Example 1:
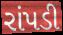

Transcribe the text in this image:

રાંપડી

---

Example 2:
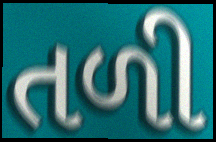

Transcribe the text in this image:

તળી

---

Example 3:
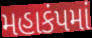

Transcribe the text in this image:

મહાકંપમાં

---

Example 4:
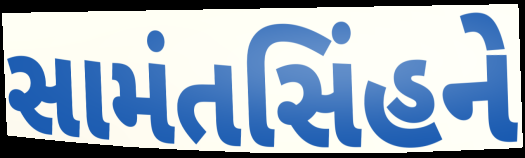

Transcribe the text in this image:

સામંતસિંહને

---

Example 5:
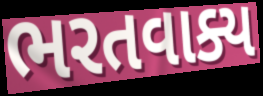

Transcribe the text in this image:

ભરતવાક્ય